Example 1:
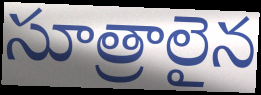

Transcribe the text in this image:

సూత్రాలైన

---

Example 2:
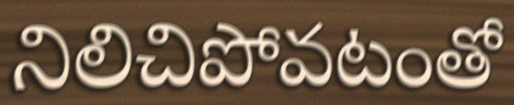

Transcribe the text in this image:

నిలిచిపోవటంతో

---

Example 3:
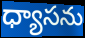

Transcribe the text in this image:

ధ్యాసను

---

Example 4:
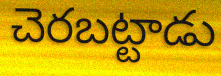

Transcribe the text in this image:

చెరబట్టాడు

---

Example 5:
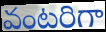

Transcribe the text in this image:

వంటరిగా